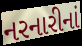
નરનારીનાં